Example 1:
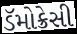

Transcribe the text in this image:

ડૅમોક્રેસી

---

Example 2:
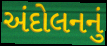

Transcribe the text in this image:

અંદોલનનું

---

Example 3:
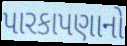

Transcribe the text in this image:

પારકાપણાનો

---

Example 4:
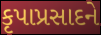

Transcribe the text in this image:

કૃપાપ્રસાદને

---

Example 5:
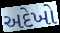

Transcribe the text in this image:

અદેખો